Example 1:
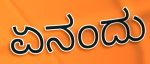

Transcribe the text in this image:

ಏನಂದು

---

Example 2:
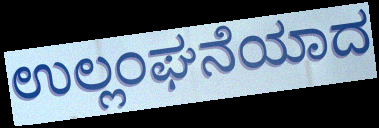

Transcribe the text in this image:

ಉಲ್ಲಂಘನೆಯಾದ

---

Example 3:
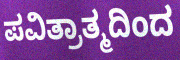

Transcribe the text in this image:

ಪವಿತ್ರಾತ್ಮದಿಂದ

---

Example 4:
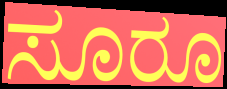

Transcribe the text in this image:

ಸೂರೂ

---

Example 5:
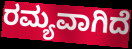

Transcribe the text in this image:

ರಮ್ಯವಾಗಿದೆ